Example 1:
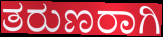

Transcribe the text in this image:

ತರುಣರಾಗಿ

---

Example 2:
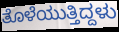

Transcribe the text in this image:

ತೊಳೆಯುತ್ತಿದ್ದಳು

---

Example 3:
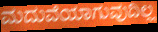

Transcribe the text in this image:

ಮದುವೆಯಾಗುವುದಿಲ್ಲ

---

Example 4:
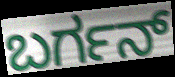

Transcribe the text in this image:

ಬರ್ಗನ್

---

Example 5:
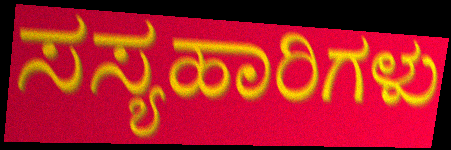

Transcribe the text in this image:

ಸಸ್ಯಹಾರಿಗಳು